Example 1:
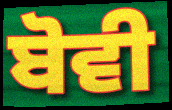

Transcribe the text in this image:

ਬੋਵੀ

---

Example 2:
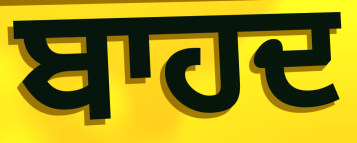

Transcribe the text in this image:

ਬਾਹਦ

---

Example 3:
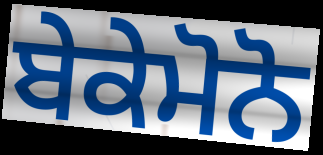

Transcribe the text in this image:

ਬੇਕੇਮੋਨੋ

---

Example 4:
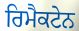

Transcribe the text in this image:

ਰਿਮੈਕਟੇਨ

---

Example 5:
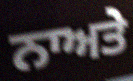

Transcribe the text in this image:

ਨਾਅਤੇ